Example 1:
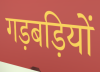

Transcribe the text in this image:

गड़बड़ियों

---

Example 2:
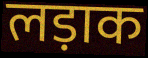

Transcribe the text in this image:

लड़ाक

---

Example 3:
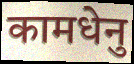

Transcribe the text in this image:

कामधेनु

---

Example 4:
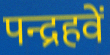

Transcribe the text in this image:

पन्द्रहवें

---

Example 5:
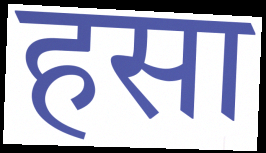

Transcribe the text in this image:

हसा